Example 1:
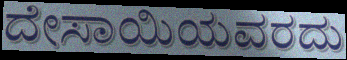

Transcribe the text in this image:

ದೇಸಾಯಿಯವರದು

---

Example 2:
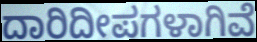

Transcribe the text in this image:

ದಾರಿದೀಪಗಳಾಗಿವೆ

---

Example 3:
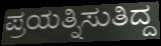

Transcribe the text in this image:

ಪ್ರಯತ್ನಿಸುತಿದ್ದ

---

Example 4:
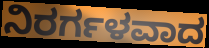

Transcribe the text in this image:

ನಿರರ್ಗಳವಾದ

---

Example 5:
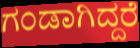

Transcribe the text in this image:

ಗಂಡಾಗಿದ್ದರೆ